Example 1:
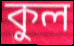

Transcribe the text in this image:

কুল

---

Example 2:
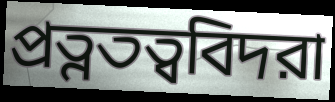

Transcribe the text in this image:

প্রত্নতত্ববিদরা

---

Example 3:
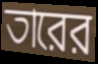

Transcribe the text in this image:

তারের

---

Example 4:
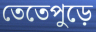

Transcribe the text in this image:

তেতেপুড়ে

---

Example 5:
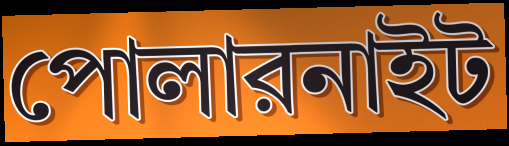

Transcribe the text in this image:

পোলারনাইট